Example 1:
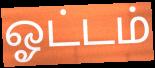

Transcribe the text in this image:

ஓட்டம்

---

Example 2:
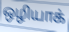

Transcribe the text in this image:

ஒழியாக்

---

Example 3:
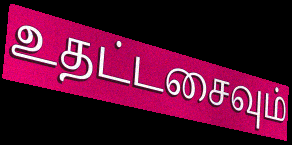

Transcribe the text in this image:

உதட்டசைவும்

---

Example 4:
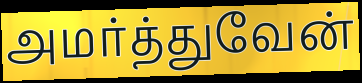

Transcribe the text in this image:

அமர்த்துவேன்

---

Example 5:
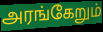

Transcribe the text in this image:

அரங்கேறும்